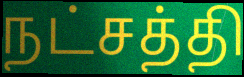
நட்சத்தி